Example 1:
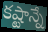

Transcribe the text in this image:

కష్టాన్నే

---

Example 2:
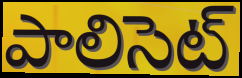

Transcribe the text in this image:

పాలిసెట్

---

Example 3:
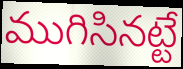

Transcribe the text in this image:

ముగిసినట్టే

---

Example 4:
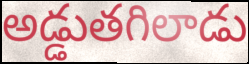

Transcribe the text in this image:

అడ్డుతగిలాడు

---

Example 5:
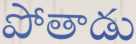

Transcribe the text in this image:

పోతాడు